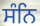
ਸੰਨਿ